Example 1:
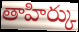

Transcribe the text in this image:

తాహిర్కు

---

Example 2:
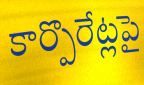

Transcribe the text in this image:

కార్పొరేట్లపై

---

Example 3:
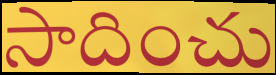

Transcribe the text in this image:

సాదించు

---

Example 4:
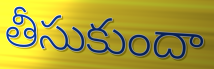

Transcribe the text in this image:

తీసుకుందా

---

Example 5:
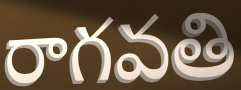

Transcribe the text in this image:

రాగవతి